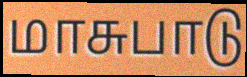
மாசுபாடு